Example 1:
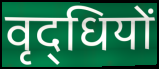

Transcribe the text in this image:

वृद्धियों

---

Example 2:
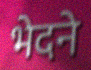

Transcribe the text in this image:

भेदने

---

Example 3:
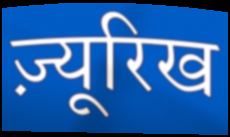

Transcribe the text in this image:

ज़्यूरिख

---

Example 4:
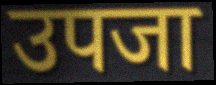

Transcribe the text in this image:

उपजा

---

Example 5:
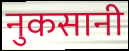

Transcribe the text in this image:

नुकसानी